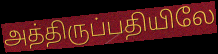
அத்திருப்பதியிலே